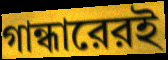
গান্ধারেরই